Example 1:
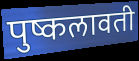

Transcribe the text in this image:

पुष्कलावती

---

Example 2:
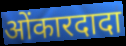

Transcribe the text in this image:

ओंकारदादा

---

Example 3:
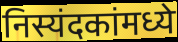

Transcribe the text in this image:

निस्यंदकांमध्ये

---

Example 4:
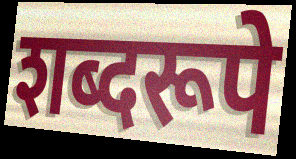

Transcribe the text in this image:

शब्दरूपे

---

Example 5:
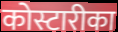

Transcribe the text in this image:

कोस्टारीका